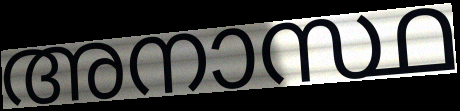
അനാസ്ഥ